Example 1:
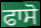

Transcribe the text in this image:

ਫਾਸੋ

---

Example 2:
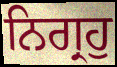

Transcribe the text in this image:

ਨਿਗ੍ਰਹੁ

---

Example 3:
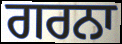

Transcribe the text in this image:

ਗਰਨਾ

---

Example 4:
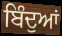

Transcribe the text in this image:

ਬਿੰਦੁਆਂ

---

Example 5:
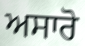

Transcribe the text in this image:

ਅਸਾਰੋ